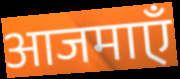
आजमाएँ